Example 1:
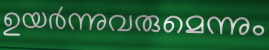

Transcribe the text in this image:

ഉയർന്നുവരുമെന്നും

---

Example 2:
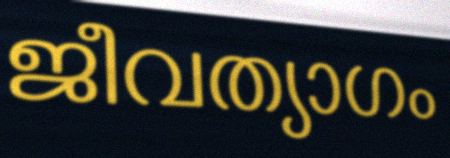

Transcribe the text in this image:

ജീവത്യാഗം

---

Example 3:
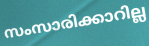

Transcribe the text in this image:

സംസാരിക്കാറില്ല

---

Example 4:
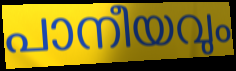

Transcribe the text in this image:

പാനീയവും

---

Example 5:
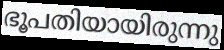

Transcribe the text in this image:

ഭൂപതിയായിരുന്നു